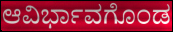
ಆವಿರ್ಭಾವಗೊಂಡ